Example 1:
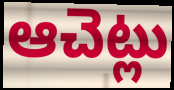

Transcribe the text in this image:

ఆచెట్లు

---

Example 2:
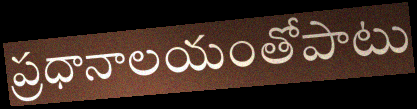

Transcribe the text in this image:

ప్రధానాలయంతోపాటు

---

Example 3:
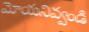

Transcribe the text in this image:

మోయనివ్వండి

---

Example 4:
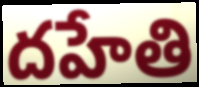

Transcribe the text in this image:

దహేతి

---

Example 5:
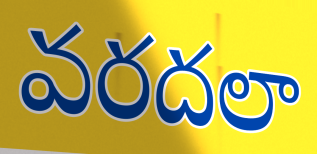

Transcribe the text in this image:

వరదలా